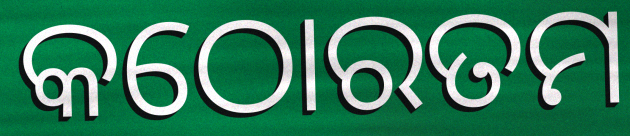
କଠୋରତମ